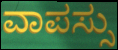
ವಾಪಸ್ಸು